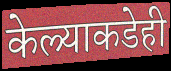
केल्याकडेही